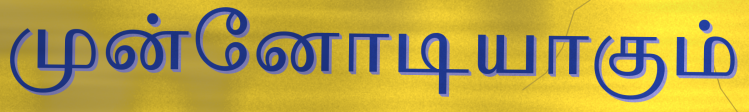
முன்னோடியாகும்